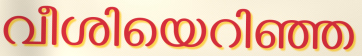
വീശിയെറിഞ്ഞ